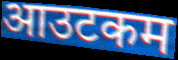
आउटकम